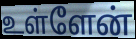
உள்ளேன்